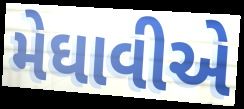
મેઘાવીએ